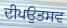
ਦੀਪਉਤਸਵ